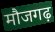
मौजगढ़